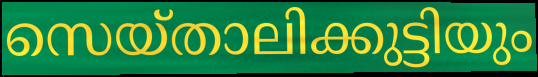
സെയ്താലിക്കുട്ടിയും